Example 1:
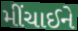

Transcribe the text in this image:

મીંચાઈને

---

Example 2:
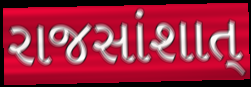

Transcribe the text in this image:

રાજસાંશાત્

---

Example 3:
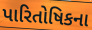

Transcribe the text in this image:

પારિતોષિકના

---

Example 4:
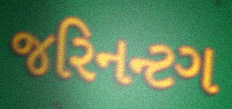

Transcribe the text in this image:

જરિનન્ટગ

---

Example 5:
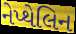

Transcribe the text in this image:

નેપ્થેલિન